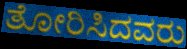
ತೋರಿಸಿದವರು